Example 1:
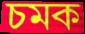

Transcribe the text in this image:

চমক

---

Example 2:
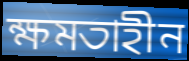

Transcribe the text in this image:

ক্ষমতাহীন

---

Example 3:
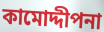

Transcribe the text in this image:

কামোদ্দীপনা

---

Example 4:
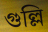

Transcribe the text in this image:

গুল্লি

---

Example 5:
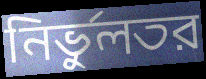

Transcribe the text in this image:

নির্ভুলতর